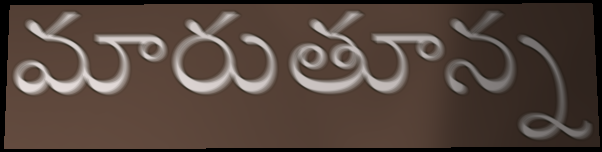
మారుతూన్న